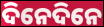
ଦିନେଦିନେ